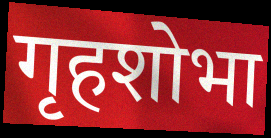
गृहशोभा